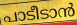
പാടീടാൻ